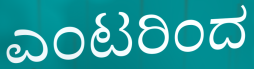
ಎಂಟರಿಂದ